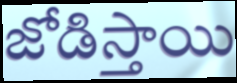
జోడిస్తాయి